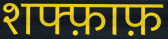
शफ्फ़ाफ़